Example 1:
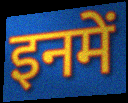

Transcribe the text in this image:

इनमें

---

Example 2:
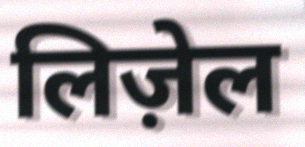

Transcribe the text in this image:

लिज़ेल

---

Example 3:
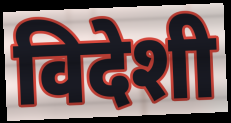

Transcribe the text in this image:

विदेशी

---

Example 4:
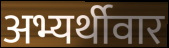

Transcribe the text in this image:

अभ्यर्थीवार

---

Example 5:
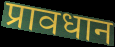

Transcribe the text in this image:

प्रावधान